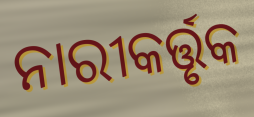
ନାରୀକର୍ତ୍ତୃକ